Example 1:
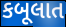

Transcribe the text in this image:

કબૂલાત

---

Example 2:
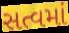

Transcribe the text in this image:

સત્વમાં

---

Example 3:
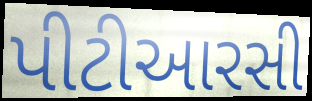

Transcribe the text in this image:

પીટીઆરસી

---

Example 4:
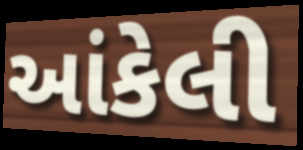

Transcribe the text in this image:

આંકેલી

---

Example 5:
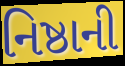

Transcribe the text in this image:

નિષ્ઠાની